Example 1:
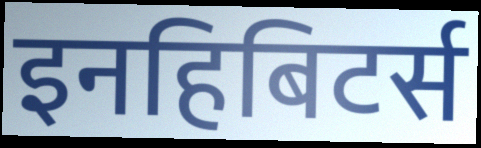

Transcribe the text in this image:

इनहिबिटर्स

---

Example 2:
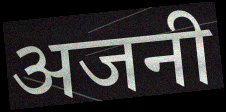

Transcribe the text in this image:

अजनी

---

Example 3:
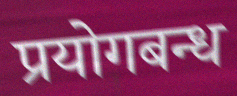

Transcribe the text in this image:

प्रयोगबन्ध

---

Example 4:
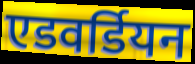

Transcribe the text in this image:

एडवर्डियन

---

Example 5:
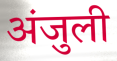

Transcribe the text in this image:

अंजुली